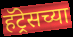
हॅट्रेसच्या